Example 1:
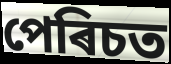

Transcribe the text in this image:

পেৰিচত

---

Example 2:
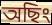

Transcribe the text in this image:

অছিং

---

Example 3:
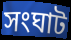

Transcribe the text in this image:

সংঘাট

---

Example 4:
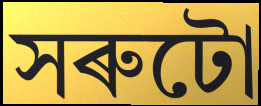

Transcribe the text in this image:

সৰুটো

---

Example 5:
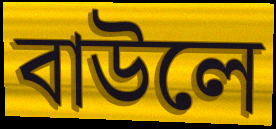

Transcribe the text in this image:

বাউলে